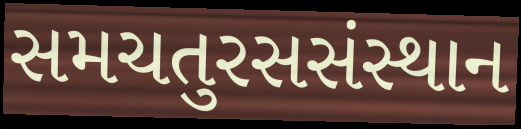
સમચતુરસસંસ્થાન